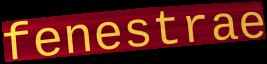
fenestrae